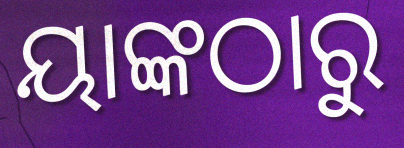
ୟାଙ୍କଠାରୁ